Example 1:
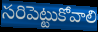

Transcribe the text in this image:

సరిపెట్టుకోవాలి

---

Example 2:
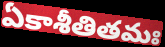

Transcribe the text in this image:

ఏకాశీతితమః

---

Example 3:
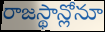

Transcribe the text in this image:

రాజస్థాన్లోనూ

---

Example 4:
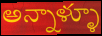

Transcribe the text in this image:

అన్నాళ్ళూ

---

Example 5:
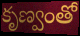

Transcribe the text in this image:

కృణ్వంతో